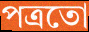
পত্ৰতো